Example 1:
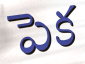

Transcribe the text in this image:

పెక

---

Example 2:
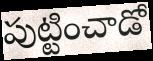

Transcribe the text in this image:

పుట్టించాడో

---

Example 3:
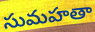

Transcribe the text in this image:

సుమహతా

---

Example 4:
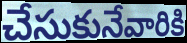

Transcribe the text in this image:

చేసుకునేవారికి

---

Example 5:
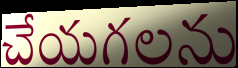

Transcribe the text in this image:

చేయగలను